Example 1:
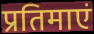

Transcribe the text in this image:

प्रतिमाएं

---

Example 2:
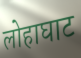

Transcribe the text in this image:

लोहाघाट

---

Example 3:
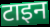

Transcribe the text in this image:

टाइन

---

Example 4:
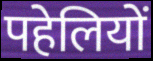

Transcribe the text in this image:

पहेलियों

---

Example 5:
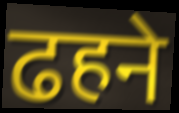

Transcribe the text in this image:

ढहने